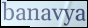
banavya